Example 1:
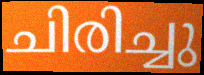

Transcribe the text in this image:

ചിരിച്ചു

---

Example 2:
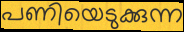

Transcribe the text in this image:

പണിയെടുക്കുന്ന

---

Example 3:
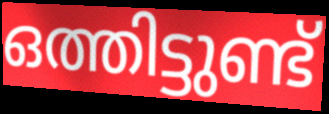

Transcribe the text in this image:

ഒത്തിട്ടുണ്ട്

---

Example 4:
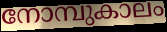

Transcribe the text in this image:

നോമ്പുകാലം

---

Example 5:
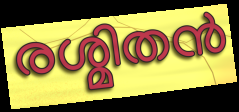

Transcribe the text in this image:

രശ്മിതൻ